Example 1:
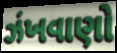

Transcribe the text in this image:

ઝંખવાણો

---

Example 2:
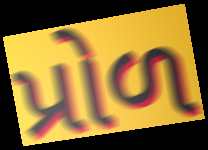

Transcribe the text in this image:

પ્રોળ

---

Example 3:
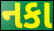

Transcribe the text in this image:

નકા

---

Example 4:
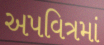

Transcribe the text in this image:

અપવિત્રમાં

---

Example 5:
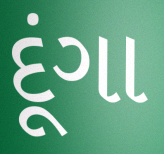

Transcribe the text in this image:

દૂંગા